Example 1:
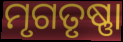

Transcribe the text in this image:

ମୃଗତୃଷ୍ଣା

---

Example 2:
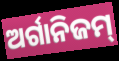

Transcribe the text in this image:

ଅର୍ଗାନିଜମ୍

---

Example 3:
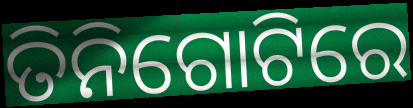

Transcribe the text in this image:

ତିନିଗୋଟିରେ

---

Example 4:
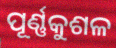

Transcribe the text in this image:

ପୂର୍ଣ୍ଣକୁଶଳ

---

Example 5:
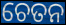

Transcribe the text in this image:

ଚେତନ